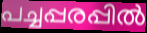
പച്ചപ്പരപ്പിൽ